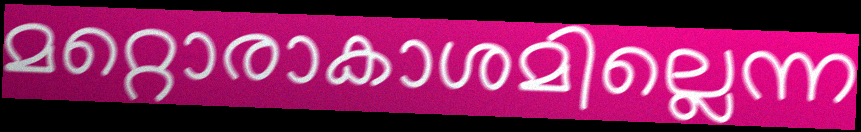
മറ്റൊരാകാശമില്ലെന്ന